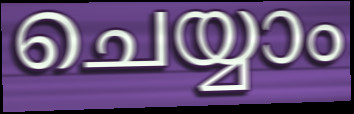
ചെയ്യാം